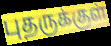
புதருக்குள்